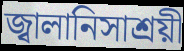
জ্বালানিসাশ্রয়ী